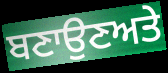
ਬਣਾਉਣਅਤੇ